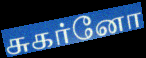
சுகர்னோ